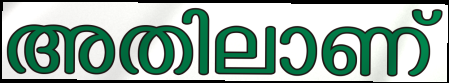
അതിലാണ്